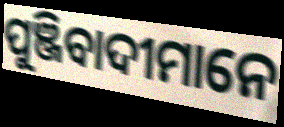
ପୁଞ୍ଜିବାଦୀମାନେ